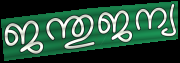
ജന്തുജന്യ